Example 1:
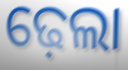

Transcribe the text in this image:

ଢ଼େଲା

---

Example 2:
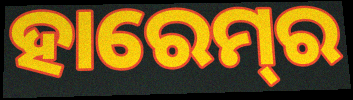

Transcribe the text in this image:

ହାରେମ୍‍ର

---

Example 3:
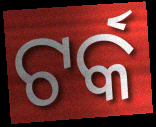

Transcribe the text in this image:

ଟର୍କ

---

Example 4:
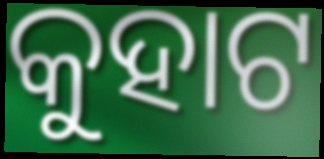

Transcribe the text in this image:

କୁହାଟ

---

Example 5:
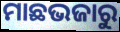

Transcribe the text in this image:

ମାଛଭଜାରୁ